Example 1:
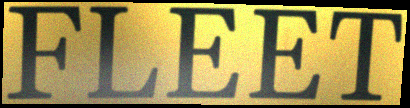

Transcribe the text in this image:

FLEET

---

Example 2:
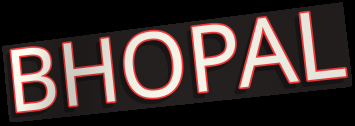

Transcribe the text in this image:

BHOPAL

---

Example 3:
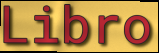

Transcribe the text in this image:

Libro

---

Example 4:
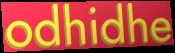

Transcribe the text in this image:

odhidhe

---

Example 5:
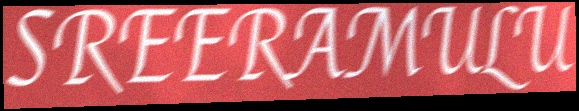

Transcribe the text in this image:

SREERAMULU